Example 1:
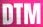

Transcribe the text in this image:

DTM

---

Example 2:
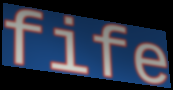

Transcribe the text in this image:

fife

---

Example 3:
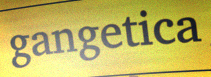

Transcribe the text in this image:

gangetica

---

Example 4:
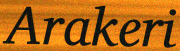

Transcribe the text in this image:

Arakeri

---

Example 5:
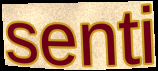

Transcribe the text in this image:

senti